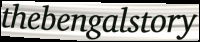
thebengalstory